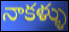
నాకళ్ళు